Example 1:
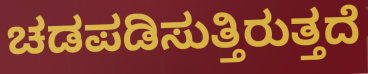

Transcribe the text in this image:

ಚಡಪಡಿಸುತ್ತಿರುತ್ತದೆ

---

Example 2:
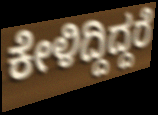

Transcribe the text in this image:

ಕೇಳಿದ್ದಿದ್ದರೆ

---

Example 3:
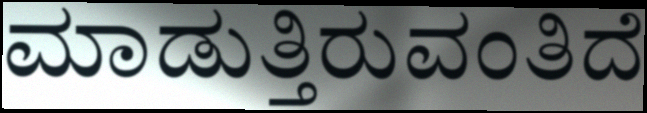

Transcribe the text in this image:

ಮಾಡುತ್ತಿರುವಂತಿದೆ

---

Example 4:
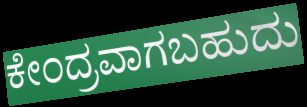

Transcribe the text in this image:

ಕೇಂದ್ರವಾಗಬಹುದು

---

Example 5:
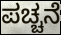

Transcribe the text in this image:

ಪಚ್ಚನೆ